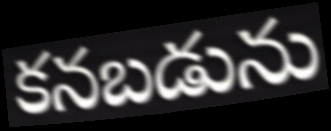
కనబడును